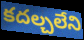
కదల్చలేని